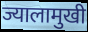
ज्यालामुखी